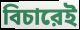
বিচারেই